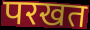
परखत